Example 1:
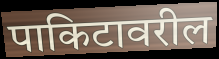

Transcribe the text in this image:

पाकिटावरील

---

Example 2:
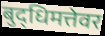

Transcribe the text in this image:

बुद्धिमत्तेवर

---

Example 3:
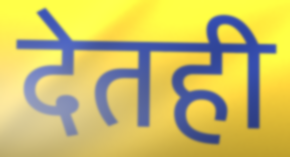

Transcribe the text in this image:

देतही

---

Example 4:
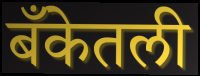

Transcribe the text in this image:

बँकेतली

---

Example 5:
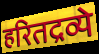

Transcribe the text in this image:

हरितद्रव्ये